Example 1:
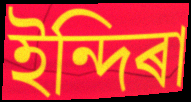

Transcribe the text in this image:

ইন্দিৰা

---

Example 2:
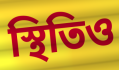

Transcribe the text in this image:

স্থিতিও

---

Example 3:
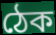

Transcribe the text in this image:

ঠেক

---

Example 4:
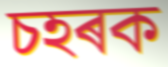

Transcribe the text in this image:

চহৰক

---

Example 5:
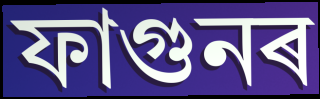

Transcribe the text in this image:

ফাগুনৰ